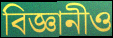
বিজ্ঞানীও